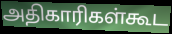
அதிகாரிகள்கூட